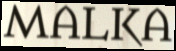
MALKA